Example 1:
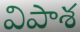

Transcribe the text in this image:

విపాశ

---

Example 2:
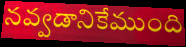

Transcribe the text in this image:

నవ్వడానికేముంది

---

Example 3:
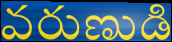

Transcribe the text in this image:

వరుణుడి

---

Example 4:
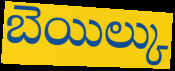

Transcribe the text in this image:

బెయిల్కు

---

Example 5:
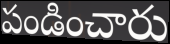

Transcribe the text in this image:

పండించారు